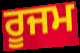
ਰੂਜਮ